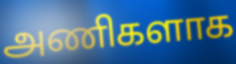
அணிகளாக